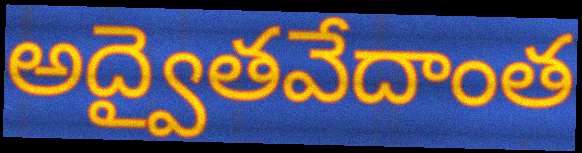
అద్వైతవేదాంత